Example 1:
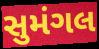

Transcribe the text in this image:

સુમંગલ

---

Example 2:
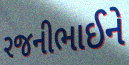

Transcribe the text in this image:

રજનીભાઈને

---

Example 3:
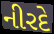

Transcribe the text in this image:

નીરદે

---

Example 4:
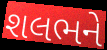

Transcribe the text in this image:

શલભને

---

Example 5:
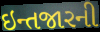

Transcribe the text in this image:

ઇન્તજારની